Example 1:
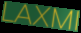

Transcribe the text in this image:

LAXMI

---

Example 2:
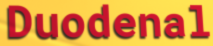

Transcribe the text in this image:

Duodenal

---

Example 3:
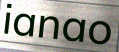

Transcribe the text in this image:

ianao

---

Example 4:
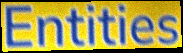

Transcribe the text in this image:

Entities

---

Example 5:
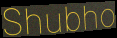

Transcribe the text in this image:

Shubho